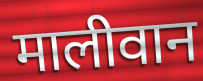
मालीवान